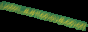
பண்டகசாலைகளை